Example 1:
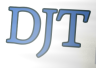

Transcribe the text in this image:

DJT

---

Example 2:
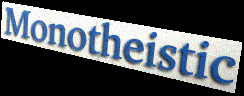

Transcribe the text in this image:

Monotheistic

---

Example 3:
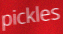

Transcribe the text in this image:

pickles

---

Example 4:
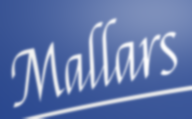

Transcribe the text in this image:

Mallars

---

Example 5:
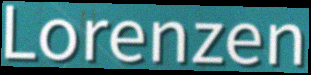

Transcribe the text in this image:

Lorenzen